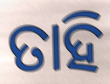
ତାହି